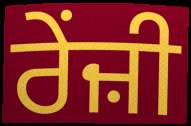
ਰੇਂਜ਼ੀ